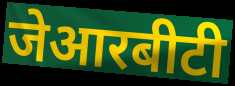
जेआरबीटी